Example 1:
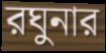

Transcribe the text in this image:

রঘুনার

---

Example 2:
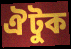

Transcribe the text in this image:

ঐটুক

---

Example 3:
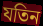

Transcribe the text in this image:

যতিন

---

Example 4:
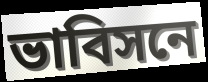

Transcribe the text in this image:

ভাবিসনে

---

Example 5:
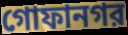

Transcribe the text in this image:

গোফানগর